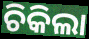
ଚିକିଲା